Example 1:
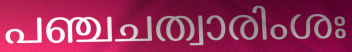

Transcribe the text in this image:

പഞ്ചചത്വാരിംശഃ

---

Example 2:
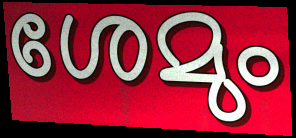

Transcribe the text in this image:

ശേമും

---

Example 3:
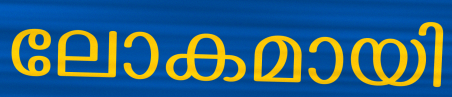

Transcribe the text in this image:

ലോകമായി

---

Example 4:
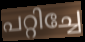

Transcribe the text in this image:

പറ്റിച്ചേ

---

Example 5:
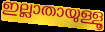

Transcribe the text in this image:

ഇല്ലാതായുള്ളൂ